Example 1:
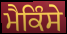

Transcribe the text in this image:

ਮੈਕਿੰਸੇ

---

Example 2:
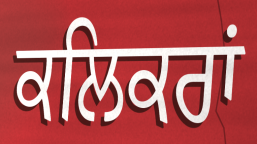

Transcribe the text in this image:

ਕਲਿਕਰਾਂ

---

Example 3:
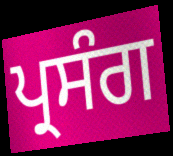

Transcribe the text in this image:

ਪ੍ਰਸੰਗ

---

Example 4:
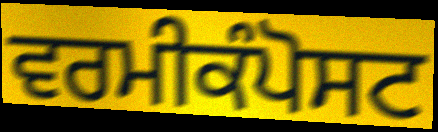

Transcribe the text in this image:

ਵਰਮੀਕੰਪੋਸਟ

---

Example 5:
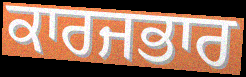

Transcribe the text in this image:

ਕਾਰਜਭਾਰ